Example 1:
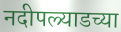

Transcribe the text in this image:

नदीपल्याडच्या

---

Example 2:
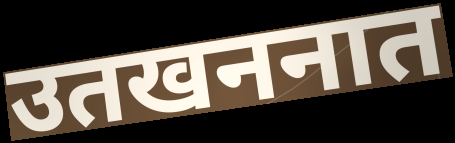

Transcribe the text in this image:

उतखननात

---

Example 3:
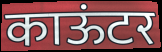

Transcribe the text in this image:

काऊंटर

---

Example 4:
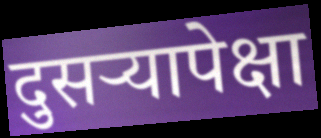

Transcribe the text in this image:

दुसऱ्यापेक्षा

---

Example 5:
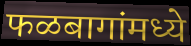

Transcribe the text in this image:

फळबागांमध्ये